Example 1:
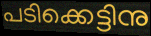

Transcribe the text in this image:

പടിക്കെട്ടിനു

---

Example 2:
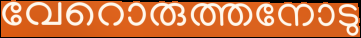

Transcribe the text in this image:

വേറൊരുത്തനോടു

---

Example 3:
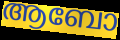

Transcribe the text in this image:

ആബോ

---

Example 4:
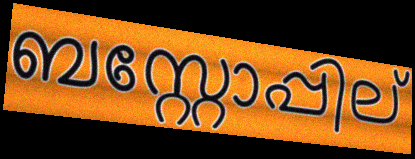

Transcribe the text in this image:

ബസ്റ്റോപ്പില്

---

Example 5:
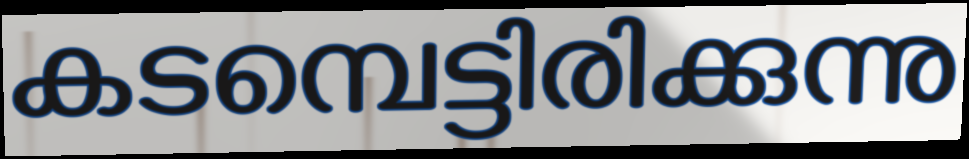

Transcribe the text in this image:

കടമ്പെട്ടിരിക്കുന്നു